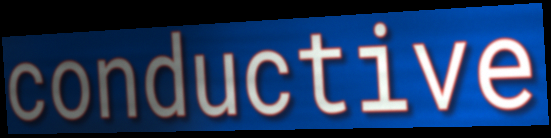
conductive